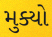
મુક્યો